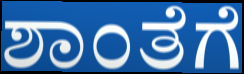
ಶಾಂತೆಗೆ